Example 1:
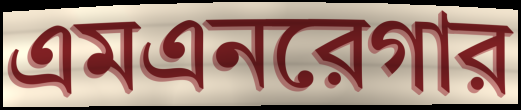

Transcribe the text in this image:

এমএনরেগার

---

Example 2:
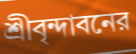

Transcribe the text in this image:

শ্রীবৃন্দাবনের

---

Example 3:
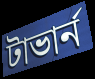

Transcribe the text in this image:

টাভার্ন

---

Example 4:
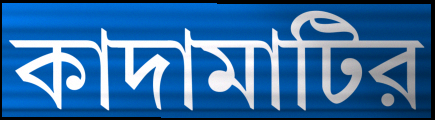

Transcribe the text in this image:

কাদামাটির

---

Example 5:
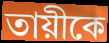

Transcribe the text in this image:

তায়ীকে